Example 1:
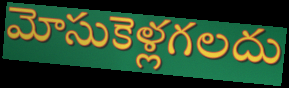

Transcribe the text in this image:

మోసుకెళ్లగలదు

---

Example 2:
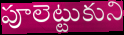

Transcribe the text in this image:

పూలెట్టుకుని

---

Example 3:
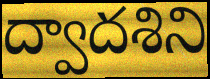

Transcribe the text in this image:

ద్వాదశిని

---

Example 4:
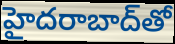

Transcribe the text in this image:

హైదరాబాద్‌తో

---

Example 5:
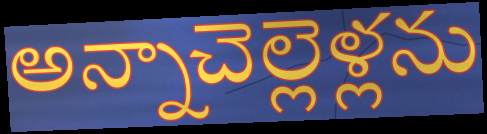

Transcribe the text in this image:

అన్నాచెల్లెళ్లను